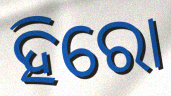
ହିରୋ